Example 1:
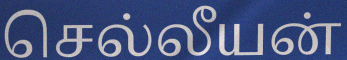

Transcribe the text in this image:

செல்லீயன்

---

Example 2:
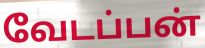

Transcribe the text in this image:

வேடப்பன்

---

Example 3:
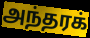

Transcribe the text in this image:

அந்தரக்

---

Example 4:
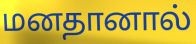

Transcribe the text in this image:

மனதானால்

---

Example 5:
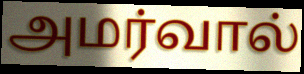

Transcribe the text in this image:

அமர்வால்